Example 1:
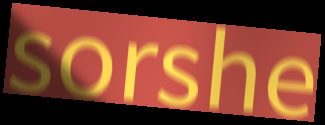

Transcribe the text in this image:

sorshe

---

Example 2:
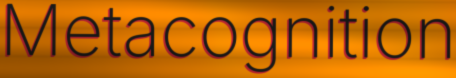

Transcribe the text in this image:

Metacognition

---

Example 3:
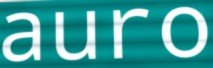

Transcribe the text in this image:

auro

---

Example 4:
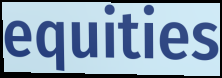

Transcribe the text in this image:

equities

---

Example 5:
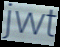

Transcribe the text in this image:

jwt